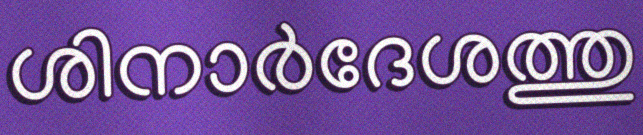
ശിനാർദേശത്തു